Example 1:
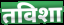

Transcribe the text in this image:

तविशा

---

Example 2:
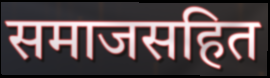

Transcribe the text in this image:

समाजसहित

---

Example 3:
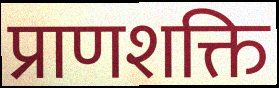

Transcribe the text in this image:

प्राणशक्ति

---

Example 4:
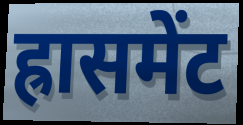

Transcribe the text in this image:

ह्रासमेंट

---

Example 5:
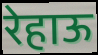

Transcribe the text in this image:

रेहाऊ